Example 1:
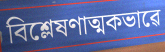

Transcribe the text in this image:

বিশ্লেষণাত্মকভাৱে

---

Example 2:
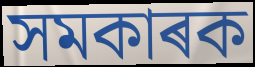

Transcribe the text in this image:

সমকাৰক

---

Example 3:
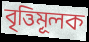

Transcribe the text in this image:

বৃত্তিমূলক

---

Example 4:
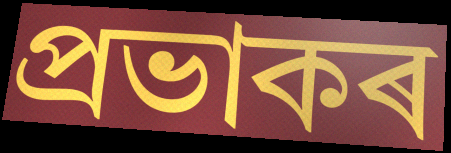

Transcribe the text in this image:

প্ৰভাকৰ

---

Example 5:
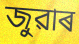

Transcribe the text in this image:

জুৱাৰ